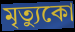
মৃত্যুকো